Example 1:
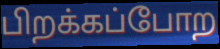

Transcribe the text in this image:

பிறக்கப்போற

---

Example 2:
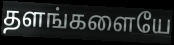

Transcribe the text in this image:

தளங்களையே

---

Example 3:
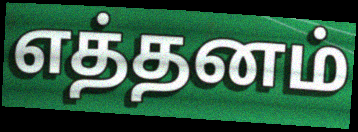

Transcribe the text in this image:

எத்தனம்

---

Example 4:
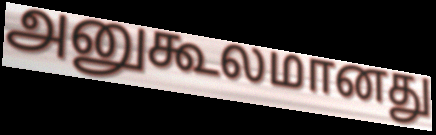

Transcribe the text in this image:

அனுகூலமானது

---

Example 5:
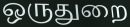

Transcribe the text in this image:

ஒருதுறை